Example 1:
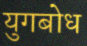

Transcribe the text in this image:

युगबोध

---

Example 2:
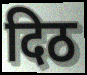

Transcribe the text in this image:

दिठ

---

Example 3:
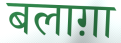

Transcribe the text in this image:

बलाग़ा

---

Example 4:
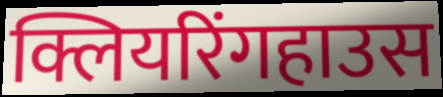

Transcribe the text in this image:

क्लियरिंगहाउस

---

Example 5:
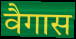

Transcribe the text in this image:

वैगास